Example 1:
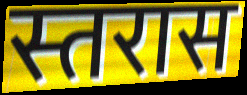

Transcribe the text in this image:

स्तरास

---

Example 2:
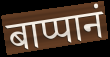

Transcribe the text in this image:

बाप्पानं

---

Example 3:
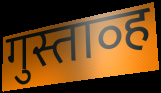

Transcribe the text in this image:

गुस्ताव्ह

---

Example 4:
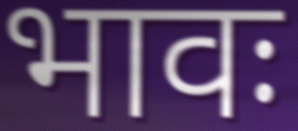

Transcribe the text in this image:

भावः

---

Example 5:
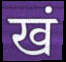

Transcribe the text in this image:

खं